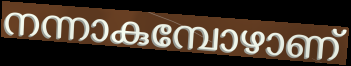
നന്നാകുമ്പോഴാണ്